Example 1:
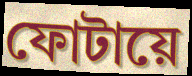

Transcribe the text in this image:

ফোটায়ে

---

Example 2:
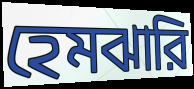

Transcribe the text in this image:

হেমঝারি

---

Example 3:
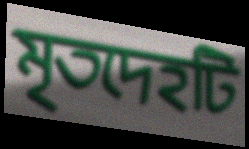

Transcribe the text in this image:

মৃতদেহটি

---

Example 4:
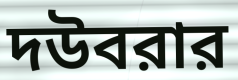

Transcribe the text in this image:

দউবরার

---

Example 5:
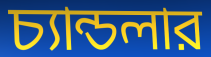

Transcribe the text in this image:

চ্যান্ডলার